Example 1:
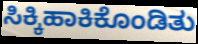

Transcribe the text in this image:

ಸಿಕ್ಕಿಹಾಕಿಕೊಂಡಿತು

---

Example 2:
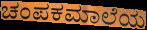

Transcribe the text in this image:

ಚಂಪಕಮಾಲೆಯ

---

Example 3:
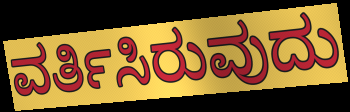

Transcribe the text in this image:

ವರ್ತಿಸಿರುವುದು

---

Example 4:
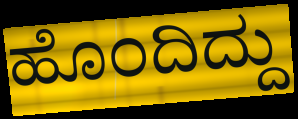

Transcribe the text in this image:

ಹೊಂದಿದ್ದು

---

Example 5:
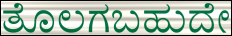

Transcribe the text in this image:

ತೊಲಗಬಹುದೇ